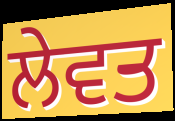
ਲੇਵਤ